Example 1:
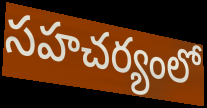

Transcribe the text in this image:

సహచర్యంలో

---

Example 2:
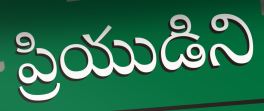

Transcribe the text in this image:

ప్రియుడిని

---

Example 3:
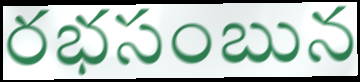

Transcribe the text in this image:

రభసంబున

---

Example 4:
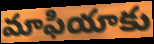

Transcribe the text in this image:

మాఫియాకు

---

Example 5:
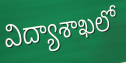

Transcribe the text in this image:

విద్యాశాఖలో